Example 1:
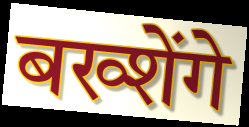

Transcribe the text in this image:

बख्शेंगे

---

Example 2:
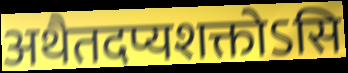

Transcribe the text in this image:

अथैतदप्यशक्तोऽसि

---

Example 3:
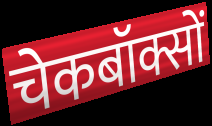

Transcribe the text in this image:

चेकबॉक्सों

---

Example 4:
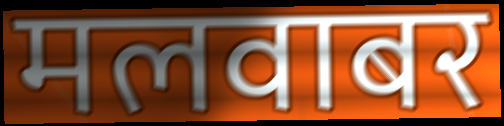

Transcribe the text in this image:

मलवाबर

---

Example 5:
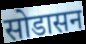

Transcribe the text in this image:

सोडासन